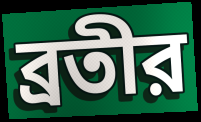
ব্রতীর